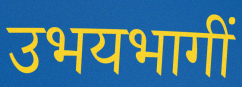
उभयभागीं